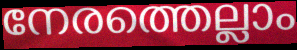
നേരത്തെല്ലാം